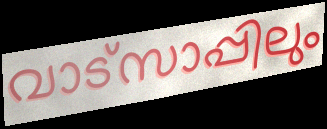
വാട്സാപ്പിലും